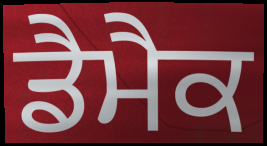
ਡੈਮੈਕ